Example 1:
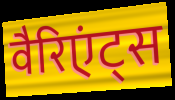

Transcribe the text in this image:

वैरिएंट्स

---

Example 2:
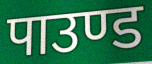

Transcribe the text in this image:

पाउण्‍ड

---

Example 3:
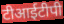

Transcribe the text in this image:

टीआईटीपी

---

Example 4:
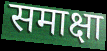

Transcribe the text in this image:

समाक्षा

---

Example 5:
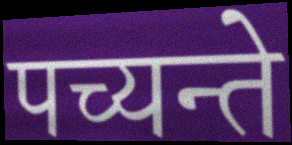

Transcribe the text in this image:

पच्यन्ते